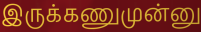
இருக்கணுமுன்னு